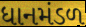
ધાનમંડળ